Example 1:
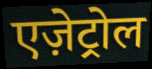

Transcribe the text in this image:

एज़ेट्रोल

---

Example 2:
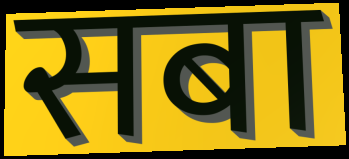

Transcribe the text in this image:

सबा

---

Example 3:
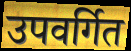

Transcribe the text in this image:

उपवर्गित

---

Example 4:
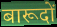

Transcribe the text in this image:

बारूदों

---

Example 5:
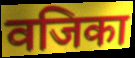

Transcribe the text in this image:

वजिका